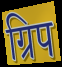
ग्रिप